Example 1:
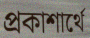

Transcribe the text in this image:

প্রকাশার্থে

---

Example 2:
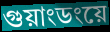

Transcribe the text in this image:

গুয়াংডংয়ে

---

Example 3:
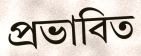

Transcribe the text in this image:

প্রভাবিত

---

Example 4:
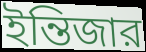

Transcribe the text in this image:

ইন্তিজার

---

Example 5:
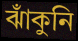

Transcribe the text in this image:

ঝাঁকুনি